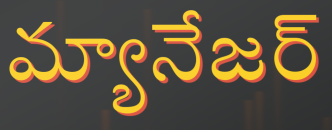
మ్యానేజర్